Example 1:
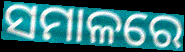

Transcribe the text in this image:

ସମାଳରେ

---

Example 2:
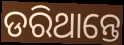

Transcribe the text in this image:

ଡରିଥାନ୍ତେ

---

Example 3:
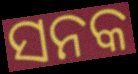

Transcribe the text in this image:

ସନକ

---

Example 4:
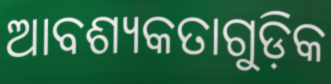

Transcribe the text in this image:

ଆବଶ୍ୟକତାଗୁଡ଼ିକ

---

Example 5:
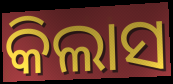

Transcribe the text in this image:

କିଲାସ